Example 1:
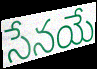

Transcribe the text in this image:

సేనయే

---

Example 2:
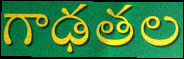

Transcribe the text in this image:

గాఢతల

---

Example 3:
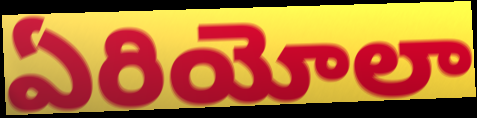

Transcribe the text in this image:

ఏరియోలా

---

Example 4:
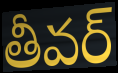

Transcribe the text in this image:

తీవర్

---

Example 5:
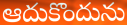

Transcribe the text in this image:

ఆదుకొందును